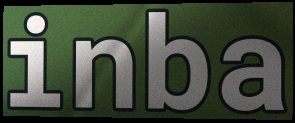
inba